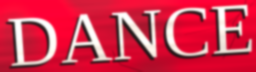
DANCE